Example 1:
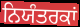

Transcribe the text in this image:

ਨਿਯੰਤਰਕਾਂ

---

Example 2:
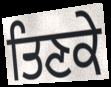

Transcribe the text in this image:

ਤਿਣਕੇ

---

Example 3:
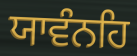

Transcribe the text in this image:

ਯਾਵੰਨਹਿ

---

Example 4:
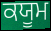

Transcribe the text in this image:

ਕਯੂਮ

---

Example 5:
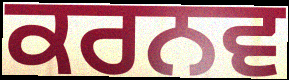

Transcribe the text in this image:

ਕਰਨਵ